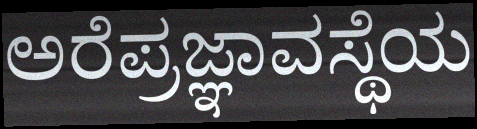
ಅರೆಪ್ರಜ್ಞಾವಸ್ಥೆಯ